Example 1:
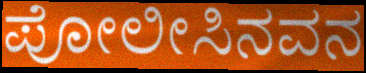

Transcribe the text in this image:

ಪೋಲೀಸಿನವನ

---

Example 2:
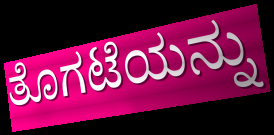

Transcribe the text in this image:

ತೊಗಟೆಯನ್ನು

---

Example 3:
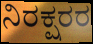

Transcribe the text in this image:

ನಿರಕ್ಷರರ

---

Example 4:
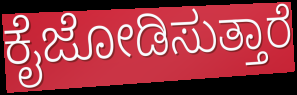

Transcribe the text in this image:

ಕೈಜೋಡಿಸುತ್ತಾರೆ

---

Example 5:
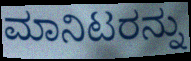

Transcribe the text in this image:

ಮಾನಿಟರನ್ನು